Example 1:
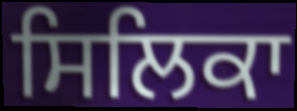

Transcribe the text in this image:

ਸਿਲਿਕਾ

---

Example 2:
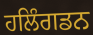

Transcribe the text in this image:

ਹਲਿੰਗਡਨ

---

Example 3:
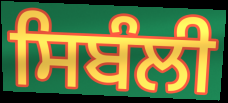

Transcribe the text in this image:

ਸਿਬੰਲੀ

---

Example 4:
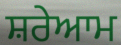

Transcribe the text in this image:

ਸ਼ਰੇਆਮ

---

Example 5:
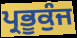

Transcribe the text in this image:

ਪ੍ਰਭੂਕੁੰਜ